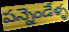
పన్నెండేళ్ళ